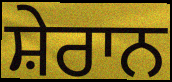
ਸ਼ੇਰਾਨ